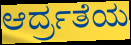
ಆರ್ದ್ರತೆಯ